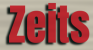
Zeits